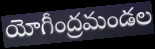
యోగీంద్రమండల